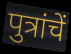
पुत्रांचें